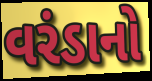
વરંડાનો